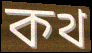
কথ